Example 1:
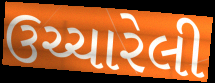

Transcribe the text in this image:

ઉચ્ચારેલી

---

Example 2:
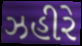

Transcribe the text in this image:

ઝહીરે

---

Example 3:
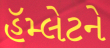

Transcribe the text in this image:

હૅમ્લેટને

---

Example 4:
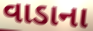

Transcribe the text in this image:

વાડાના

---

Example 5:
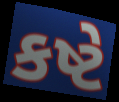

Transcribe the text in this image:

કષ્ટે